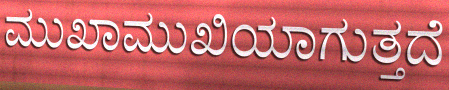
ಮುಖಾಮುಖಿಯಾಗುತ್ತದೆ